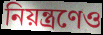
নিয়ন্ত্রণেও